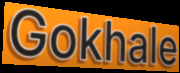
Gokhale